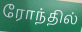
ரோந்தில்